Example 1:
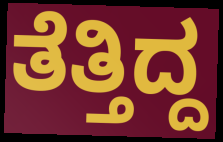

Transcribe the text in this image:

ತೆತ್ತಿದ್ದ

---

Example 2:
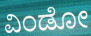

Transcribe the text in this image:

ವಿಂಡೋ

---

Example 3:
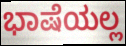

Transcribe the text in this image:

ಭಾಷೆಯಲ್ಲ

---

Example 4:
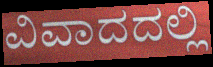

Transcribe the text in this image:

ವಿವಾದದಲ್ಲಿ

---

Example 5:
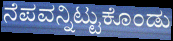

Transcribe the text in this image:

ನೆಪವನ್ನಿಟ್ಟುಕೊಂಡು